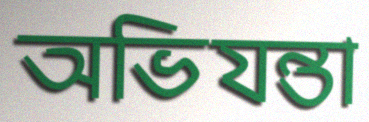
অভিযন্তা